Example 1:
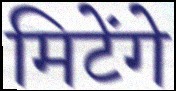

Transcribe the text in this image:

मिटेंगे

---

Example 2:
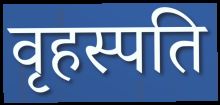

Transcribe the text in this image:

वृहस्पति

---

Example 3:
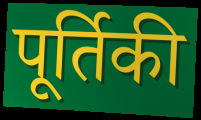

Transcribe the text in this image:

पूर्तिकी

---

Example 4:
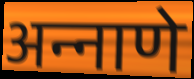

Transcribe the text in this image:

अन्नाणे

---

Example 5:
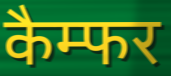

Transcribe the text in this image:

कैम्फर